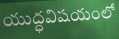
యుద్ధవిషయంలో